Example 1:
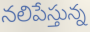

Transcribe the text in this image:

నలిపేస్తున్న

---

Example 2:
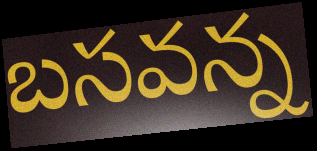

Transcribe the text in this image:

బసవన్న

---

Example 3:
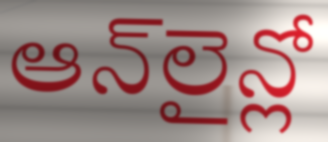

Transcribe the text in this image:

ఆన్‌లైన్లో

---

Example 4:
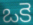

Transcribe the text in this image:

ఒకె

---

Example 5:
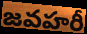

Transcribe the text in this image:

జవహరీ